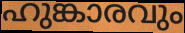
ഹുങ്കാരവും